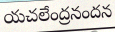
యచలేంద్రనందన